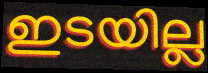
ഇടയില്ല